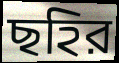
ছহির